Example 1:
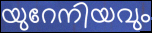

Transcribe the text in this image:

യുറേനിയവും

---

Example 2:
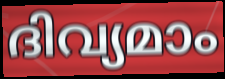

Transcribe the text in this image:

ദിവ്യമാം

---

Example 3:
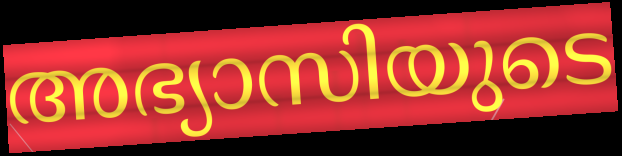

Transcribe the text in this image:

അഭ്യാസിയുടെ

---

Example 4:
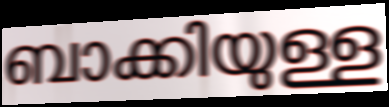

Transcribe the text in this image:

ബാക്കിയുള്ള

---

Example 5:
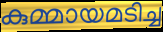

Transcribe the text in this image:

കുമ്മായമടിച്ച